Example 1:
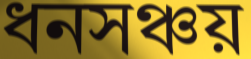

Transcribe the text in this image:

ধনসঞ্চয়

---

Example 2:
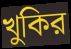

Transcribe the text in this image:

খুকির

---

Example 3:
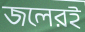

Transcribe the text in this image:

জলেরই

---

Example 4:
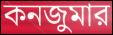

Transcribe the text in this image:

কনজুমার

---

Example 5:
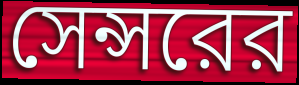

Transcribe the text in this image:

সেন্সরের